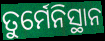
ତୁର୍ମେନିସ୍ଥାନ